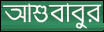
আশুবাবুর